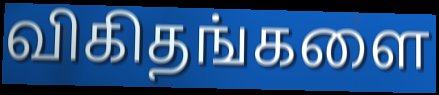
விகிதங்களை